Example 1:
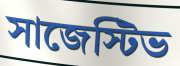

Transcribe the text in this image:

সাজেস্টিভ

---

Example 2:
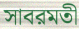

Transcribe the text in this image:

সাবরমতী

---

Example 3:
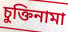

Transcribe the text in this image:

চুক্তিনামা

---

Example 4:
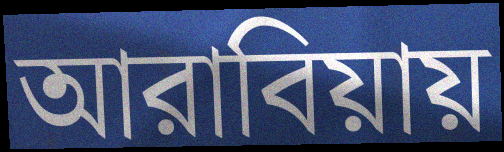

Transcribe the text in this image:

আরাবিয়ায়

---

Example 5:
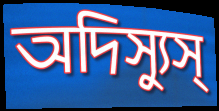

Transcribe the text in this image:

অদিস্যুস্